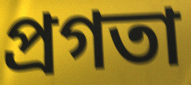
প্রগতা